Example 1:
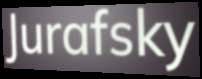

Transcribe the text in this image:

Jurafsky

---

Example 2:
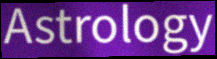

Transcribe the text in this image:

Astrology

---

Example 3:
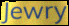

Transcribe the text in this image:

Jewry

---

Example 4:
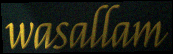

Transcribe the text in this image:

wasallam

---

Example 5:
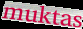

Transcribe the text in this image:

muktas